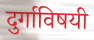
दुर्गाविषयी